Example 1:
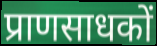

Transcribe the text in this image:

प्राणसाधकों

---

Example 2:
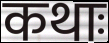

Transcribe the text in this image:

कथाः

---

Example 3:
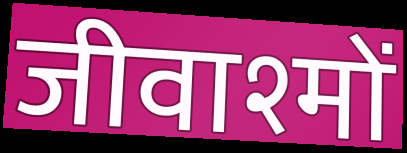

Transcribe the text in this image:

जीवाश्मों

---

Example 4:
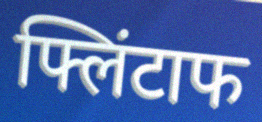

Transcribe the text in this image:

फ्लिंटाफ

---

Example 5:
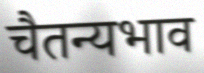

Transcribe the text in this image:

चैतन्यभाव